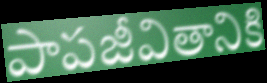
పాపజీవితానికి